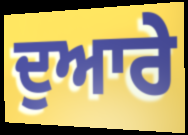
ਦੁਆਰੇ